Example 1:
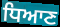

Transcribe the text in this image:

ਧਿਆਣ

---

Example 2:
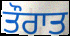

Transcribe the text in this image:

ਤੌਰਾਤ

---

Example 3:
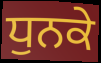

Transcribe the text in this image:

ਧੁਨਕੇ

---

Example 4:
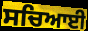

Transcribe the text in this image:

ਸਚਿਆਈ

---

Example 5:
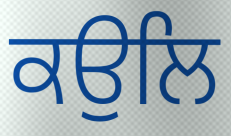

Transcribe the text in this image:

ਕਉਲਿ